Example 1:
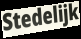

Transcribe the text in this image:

Stedelijk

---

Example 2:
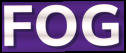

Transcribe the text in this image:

FOG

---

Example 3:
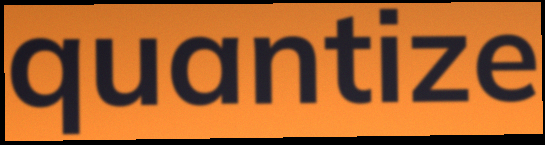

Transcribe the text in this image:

quantize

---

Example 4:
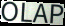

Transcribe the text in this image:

OLAP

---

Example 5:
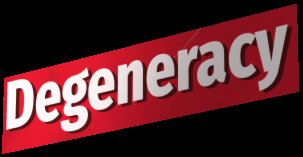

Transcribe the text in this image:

Degeneracy